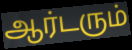
ஆர்டரும்